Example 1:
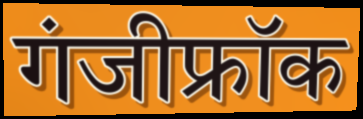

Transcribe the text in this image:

गंजीफ्रॉक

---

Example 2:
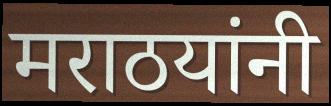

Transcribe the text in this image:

मराठयांनी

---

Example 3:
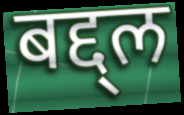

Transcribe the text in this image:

बद्द्ल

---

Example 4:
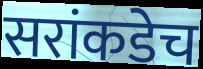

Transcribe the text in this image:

सरांकडेच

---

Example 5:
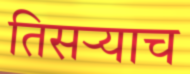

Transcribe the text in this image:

तिसर्‍याच